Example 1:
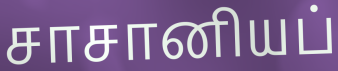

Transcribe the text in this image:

சாசானியப்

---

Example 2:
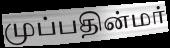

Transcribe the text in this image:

முப்பதின்மர்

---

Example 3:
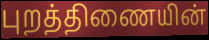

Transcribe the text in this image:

புறத்திணையின்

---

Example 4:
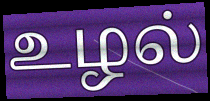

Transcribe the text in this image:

உழல்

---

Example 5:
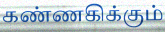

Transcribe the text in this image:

கண்ணகிக்கும்